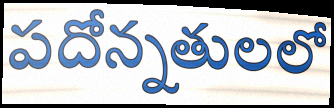
పదోన్నతులలో